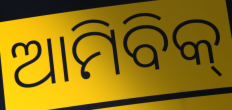
ଆମିବିକ୍